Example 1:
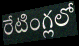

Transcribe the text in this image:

రేటింగ్లలో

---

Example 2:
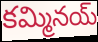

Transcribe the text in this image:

కమ్మినయ్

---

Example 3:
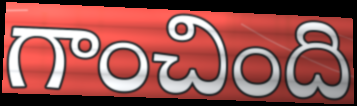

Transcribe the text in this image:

గాంచింది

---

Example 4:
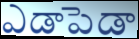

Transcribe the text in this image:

ఎడాపెడా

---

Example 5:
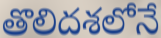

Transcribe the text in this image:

తొలిదశలోనే